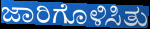
ಜಾರಿಗೊಳಿಸಿತು